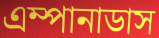
এম্পানাডাস